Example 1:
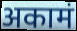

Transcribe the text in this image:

अकामं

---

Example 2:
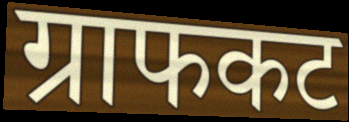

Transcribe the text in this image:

ग्राफकट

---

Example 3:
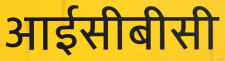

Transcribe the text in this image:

आईसीबीसी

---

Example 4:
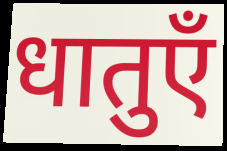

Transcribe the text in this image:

धातुएँ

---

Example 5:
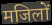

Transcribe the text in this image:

मजिलों